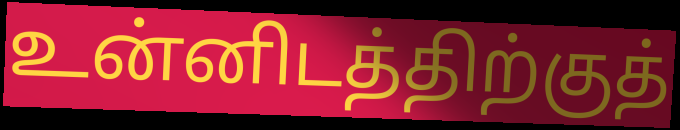
உன்னிடத்திற்குத்